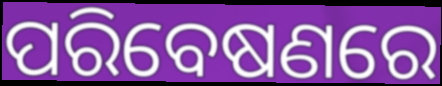
ପରିବେଷଣରେ